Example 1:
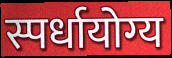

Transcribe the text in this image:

स्पर्धायोग्य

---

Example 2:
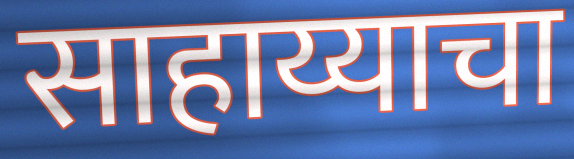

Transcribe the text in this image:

साहाय्याचा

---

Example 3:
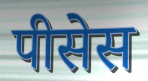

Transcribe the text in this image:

पीसेस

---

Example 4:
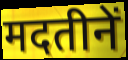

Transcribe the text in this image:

मदतीनें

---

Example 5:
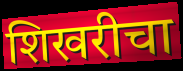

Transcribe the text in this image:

शिखरीचा